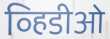
व्हिडीओ